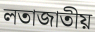
লতাজাতীয়